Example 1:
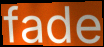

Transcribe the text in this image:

fade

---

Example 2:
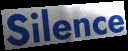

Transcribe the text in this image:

Silence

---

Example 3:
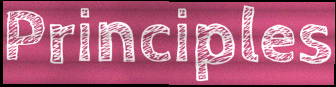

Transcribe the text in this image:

Principles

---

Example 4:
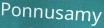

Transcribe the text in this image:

Ponnusamy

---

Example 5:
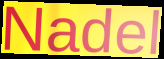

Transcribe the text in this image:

Nadel